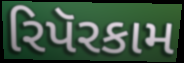
રિપૅરકામ